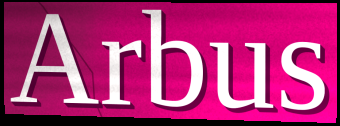
Arbus